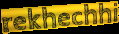
rekhechhi